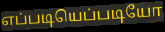
எப்படியெப்படியோ